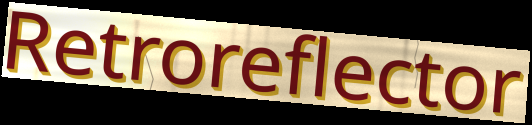
Retroreflector